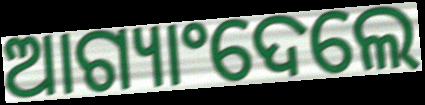
ଆଗ୍ୟାଂଦେଲେ